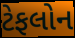
ટેફલોન